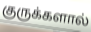
குருக்களால்